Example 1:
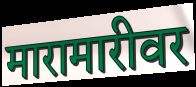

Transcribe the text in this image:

मारामारीवर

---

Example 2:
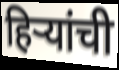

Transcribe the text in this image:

हिऱ्यांची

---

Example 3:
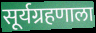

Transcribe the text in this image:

सूर्यग्रहणाला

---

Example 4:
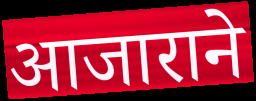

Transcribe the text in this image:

आजाराने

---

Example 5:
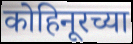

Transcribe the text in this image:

कोहिनूरच्या